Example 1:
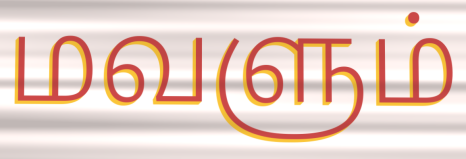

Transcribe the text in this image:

மவளும்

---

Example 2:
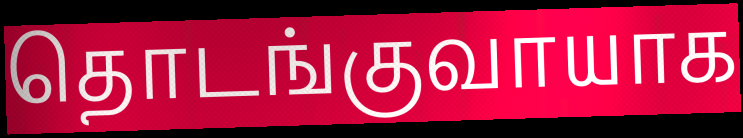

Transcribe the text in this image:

தொடங்குவாயாக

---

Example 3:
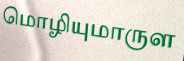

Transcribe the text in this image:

மொழியுமாருள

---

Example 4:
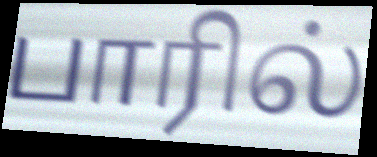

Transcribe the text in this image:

பாரில்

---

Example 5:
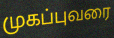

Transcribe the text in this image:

முகப்புவரை